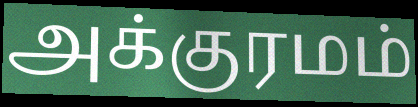
அக்குரமம்